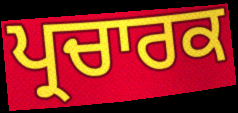
ਪ੍ਰਚਾਰਕ